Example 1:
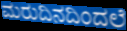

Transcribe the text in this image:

ಮರುದಿನದಿಂದಲೆ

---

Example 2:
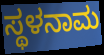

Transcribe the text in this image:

ಸ್ಥಳನಾಮ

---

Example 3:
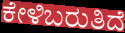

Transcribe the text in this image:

ಕೇಳಿಬರುತಿದೆ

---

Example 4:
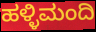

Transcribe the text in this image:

ಹಳ್ಳಿಮಂದಿ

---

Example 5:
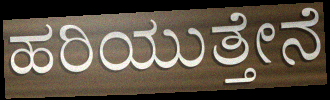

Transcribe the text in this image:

ಹರಿಯುತ್ತೇನೆ